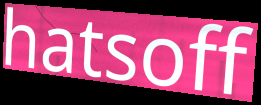
hatsoff